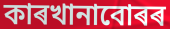
কাৰখানাবোৰৰ